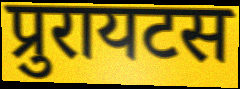
प्रुरायटस